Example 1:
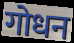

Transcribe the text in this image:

गोधन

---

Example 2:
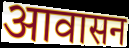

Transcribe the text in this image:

आवासन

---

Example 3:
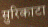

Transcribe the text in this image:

सुरिकाटा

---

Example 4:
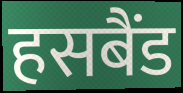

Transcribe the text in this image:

हसबैंड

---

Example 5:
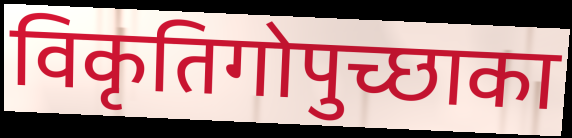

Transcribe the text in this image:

विकृतिगोपुच्छाका